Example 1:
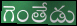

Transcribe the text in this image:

గెంతేడు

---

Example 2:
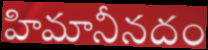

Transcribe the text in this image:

హిమానీనదం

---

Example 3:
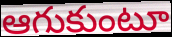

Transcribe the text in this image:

ఆగుకుంటూ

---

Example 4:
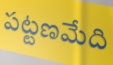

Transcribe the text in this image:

పట్టణమేది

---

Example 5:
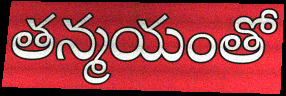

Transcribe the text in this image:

తన్మయంతో